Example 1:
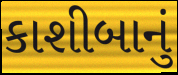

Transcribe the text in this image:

કાશીબાનું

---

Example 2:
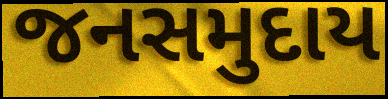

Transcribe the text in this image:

જનસમુદાય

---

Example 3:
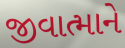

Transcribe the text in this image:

જીવાત્માને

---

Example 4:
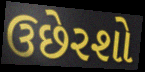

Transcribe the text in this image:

ઉછેરશો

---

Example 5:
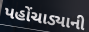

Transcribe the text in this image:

પહોંચાડ્યાની